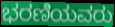
ಭರಣಿಯವರು